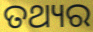
ତଥ୍ୟର